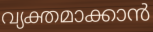
വ്യക്തമാക്കാൻ